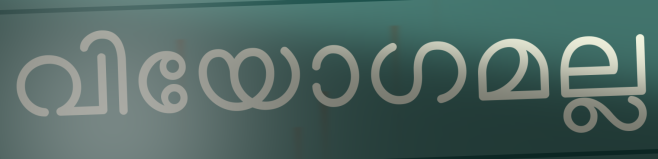
വിയോഗമല്ല